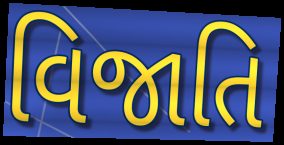
વિજાતિ